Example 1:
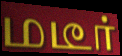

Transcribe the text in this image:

மடீர்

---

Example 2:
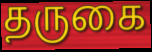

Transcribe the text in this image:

தருகை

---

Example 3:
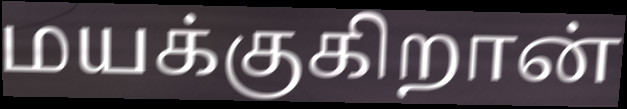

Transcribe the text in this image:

மயக்குகிறான்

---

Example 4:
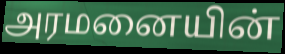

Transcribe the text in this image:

அரமனையின்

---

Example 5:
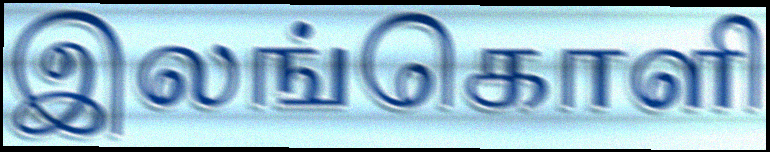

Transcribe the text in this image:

இலங்கொளி